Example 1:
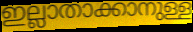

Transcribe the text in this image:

ഇല്ലാതാക്കാനുള്ള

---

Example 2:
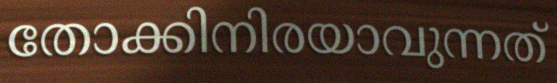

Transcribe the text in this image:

തോക്കിനിരയാവുന്നത്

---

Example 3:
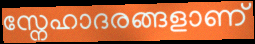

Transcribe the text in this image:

സ്നേഹാദരങ്ങളാണ്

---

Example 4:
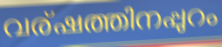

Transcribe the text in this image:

വര്ഷത്തിനപ്പുറം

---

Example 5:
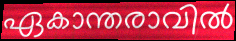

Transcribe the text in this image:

ഏകാന്തരാവിൽ